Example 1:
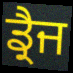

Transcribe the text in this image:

ਡ੍ਰੈਜ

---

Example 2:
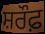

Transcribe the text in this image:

ਸ਼ਰੌਫ਼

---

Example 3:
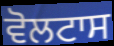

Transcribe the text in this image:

ਵੋਲਟਾਸ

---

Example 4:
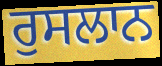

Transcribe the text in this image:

ਰੁਸਲਾਨ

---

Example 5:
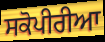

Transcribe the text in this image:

ਸਕੋਪੀਰੀਆ